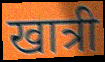
खात्री